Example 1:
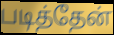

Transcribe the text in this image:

படித்தேன்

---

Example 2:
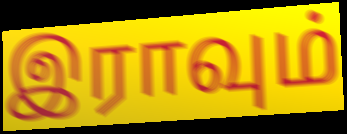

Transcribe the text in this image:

இராவும்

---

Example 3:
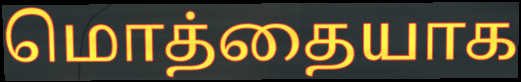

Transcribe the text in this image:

மொத்தையாக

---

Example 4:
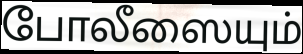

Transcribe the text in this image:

போலீஸையும்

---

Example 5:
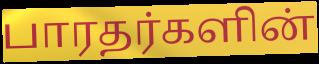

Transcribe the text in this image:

பாரதர்களின்